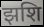
झशि